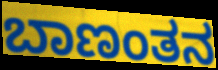
ಬಾಣಂತನ